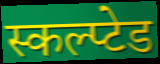
स्कल्प्टेड